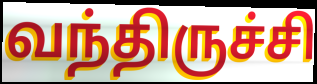
வந்திருச்சி